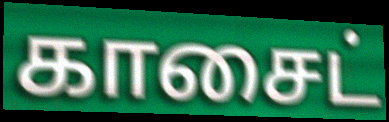
காசைட்